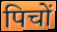
पिचों